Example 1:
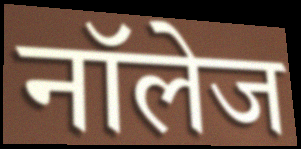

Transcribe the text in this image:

नॉलेज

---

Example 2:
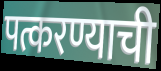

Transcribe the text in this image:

पत्करण्याची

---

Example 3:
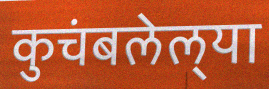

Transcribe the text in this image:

कुचंबलेल्या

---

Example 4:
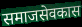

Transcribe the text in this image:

समाजसेवकास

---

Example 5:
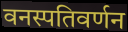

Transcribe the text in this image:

वनस्पतिवर्णन